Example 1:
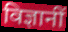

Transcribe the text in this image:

विज्ञानीं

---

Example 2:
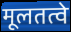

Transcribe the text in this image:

मूलतत्वे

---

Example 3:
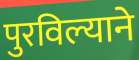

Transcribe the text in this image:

पुरविल्याने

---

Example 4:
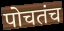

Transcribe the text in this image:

पोचतंच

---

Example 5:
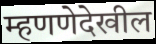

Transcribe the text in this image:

म्हणणेदेखील